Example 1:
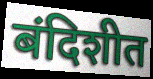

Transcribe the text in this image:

बंदिशीत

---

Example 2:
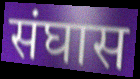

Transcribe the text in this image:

संघास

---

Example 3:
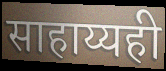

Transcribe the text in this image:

साहाय्यही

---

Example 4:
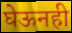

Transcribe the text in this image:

घेऊनही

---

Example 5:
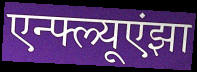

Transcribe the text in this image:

एन्फ्ल्यूएंझा